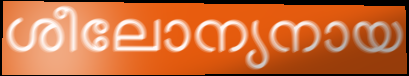
ശീലോന്യനായ